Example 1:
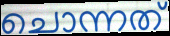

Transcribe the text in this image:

ചൊന്നത്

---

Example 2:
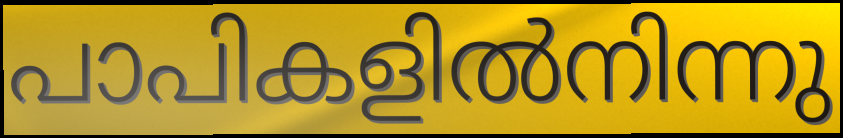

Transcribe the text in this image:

പാപികളിൽനിന്നു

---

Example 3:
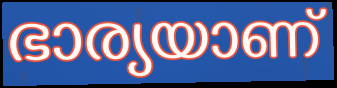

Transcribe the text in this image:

ഭാര്യയാണ്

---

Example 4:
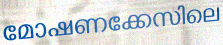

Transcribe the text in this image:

മോഷണക്കേസിലെ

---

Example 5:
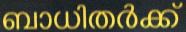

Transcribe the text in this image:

ബാധിതർക്ക്